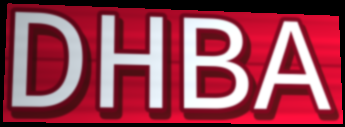
DHBA